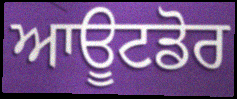
ਆਊਟਡੋਰ